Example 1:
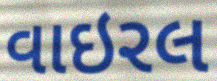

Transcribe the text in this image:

વાઇરલ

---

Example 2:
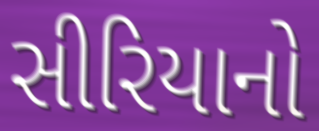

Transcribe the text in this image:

સીરિયાનો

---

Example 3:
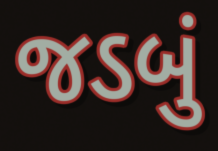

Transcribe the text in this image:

જડબું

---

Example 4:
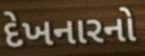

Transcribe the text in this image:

દેખનારનો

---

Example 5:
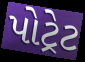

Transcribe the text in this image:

પોટ્રેટ